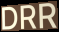
DRR